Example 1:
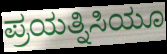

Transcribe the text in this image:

ಪ್ರಯತ್ನಿಸಿಯೂ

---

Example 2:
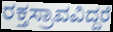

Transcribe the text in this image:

ರಕ್ತಸ್ರಾವವಿದ್ದರೆ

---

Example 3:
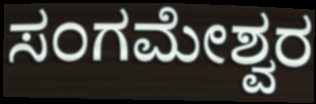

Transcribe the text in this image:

ಸಂಗಮೇಶ್ವರ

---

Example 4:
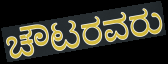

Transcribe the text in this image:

ಚೌಟರವರು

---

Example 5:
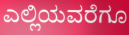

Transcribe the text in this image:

ಎಲ್ಲಿಯವರೆಗೂ